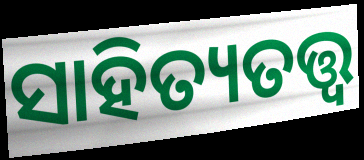
ସାହିତ୍ୟତତ୍ତ୍ୱ